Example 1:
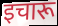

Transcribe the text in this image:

इचारू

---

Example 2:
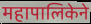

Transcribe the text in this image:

महापालिकेने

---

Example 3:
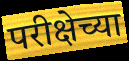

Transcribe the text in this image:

परीक्षेच्या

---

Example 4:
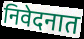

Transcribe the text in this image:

निवेदनात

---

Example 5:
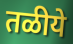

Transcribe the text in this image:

तळीये